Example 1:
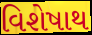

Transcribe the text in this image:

વિશેષાથ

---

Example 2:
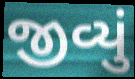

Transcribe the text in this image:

જીવ્યું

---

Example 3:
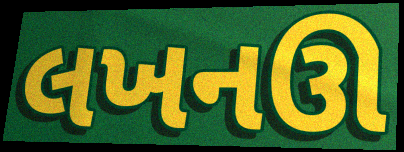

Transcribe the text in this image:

લખનઊ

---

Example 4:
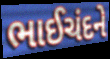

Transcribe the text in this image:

ભાઈચંદને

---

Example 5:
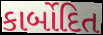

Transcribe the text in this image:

કાર્બોદિત